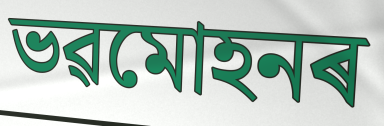
ভৱমোহনৰ